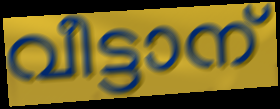
വീട്ടാന്